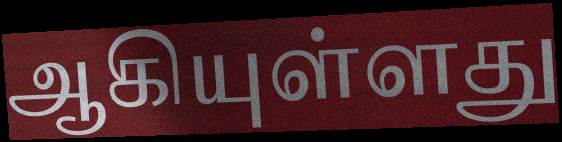
ஆகியுள்ளது